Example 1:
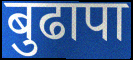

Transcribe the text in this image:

बुढापा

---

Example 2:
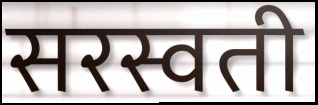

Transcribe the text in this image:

सरस्‍वती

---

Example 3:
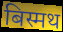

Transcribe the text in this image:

बिस्मथ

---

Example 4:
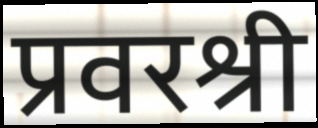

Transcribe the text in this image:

प्रवरश्री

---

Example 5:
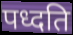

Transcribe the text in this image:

पध्दति